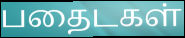
பதைடகள்